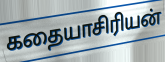
கதையாசிரியன்